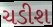
ચડીશ